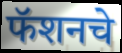
फॅशनचे